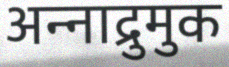
अन्नाद्रुमुक